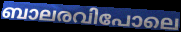
ബാലരവിപോലെ